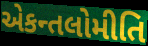
એકન્તલોમીતિ